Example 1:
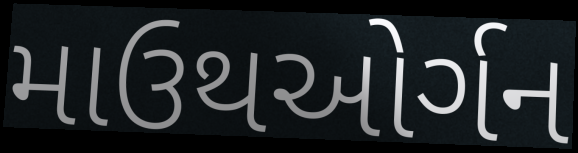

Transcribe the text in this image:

માઉથઓર્ગન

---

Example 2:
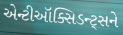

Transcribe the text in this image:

એન્ટીઑક્સિડન્ટ્સને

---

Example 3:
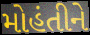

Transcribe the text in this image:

મોહંતીને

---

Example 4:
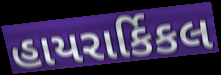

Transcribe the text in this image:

હાયરાર્કિકલ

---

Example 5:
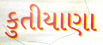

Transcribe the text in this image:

કુતીયાણા